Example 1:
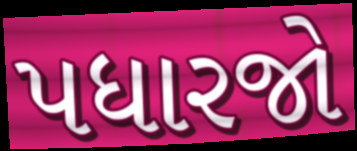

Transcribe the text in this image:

પધારજો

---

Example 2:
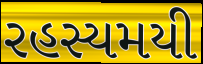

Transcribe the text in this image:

રહસ્યમયી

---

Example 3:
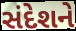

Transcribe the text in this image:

સંદેશને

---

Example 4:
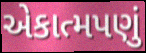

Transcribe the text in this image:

એકાત્મપણું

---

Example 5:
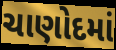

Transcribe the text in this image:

ચાણોદમાં